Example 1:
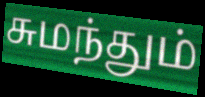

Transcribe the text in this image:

சுமந்தும்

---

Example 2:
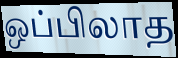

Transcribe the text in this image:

ஒப்பிலாத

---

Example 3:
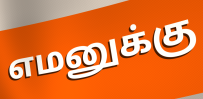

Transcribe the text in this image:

எமனுக்கு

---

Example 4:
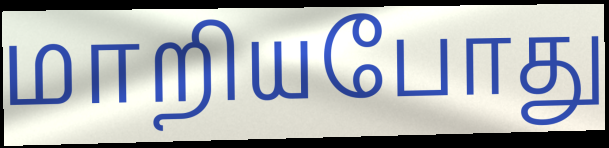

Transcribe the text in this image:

மாறியபோது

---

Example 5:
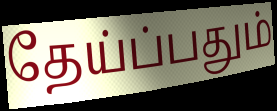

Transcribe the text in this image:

தேய்ப்பதும்